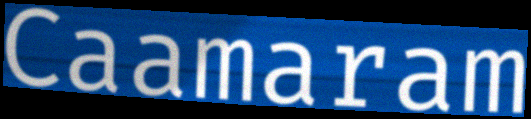
Caamaram